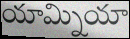
యామ్నియా